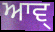
ਆਵ੍